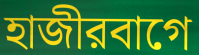
হাজীরবাগে